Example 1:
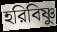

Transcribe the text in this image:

হরিবিষ্ণু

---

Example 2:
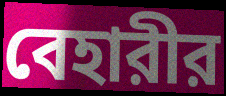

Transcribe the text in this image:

বেহারীর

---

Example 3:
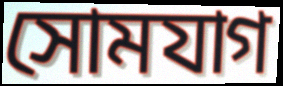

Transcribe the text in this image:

সোমযাগ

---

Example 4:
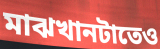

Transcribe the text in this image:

মাঝখানটাতেও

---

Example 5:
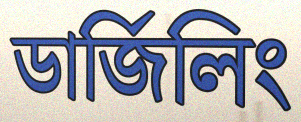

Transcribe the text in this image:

ডার্জিলিং